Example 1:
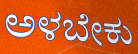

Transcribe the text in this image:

ಅಳಬೇಕು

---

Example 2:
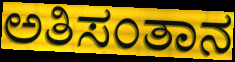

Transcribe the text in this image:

ಅತಿಸಂತಾನ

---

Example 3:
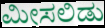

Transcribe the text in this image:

ಮೀಸಲಿಡು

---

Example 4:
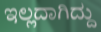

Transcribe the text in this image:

ಇಲ್ಲದಾಗಿದ್ದು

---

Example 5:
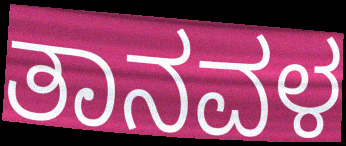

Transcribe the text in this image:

ತಾನವಳ